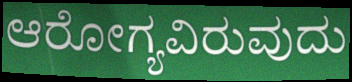
ಆರೋಗ್ಯವಿರುವುದು